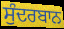
ਸੁੰਦਰਬਾਨ